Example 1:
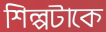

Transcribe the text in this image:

শিল্পটাকে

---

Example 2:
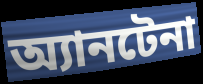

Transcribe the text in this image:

অ্যানটেনা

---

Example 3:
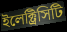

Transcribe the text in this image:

ইলেক্ট্রিসিটি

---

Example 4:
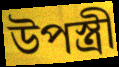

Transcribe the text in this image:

উপস্ত্রী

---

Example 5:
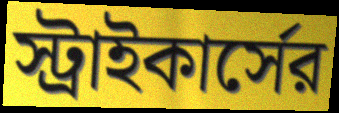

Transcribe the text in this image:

স্ট্রাইকার্সের